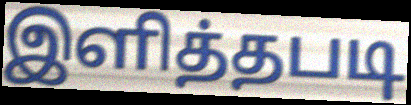
இளித்தபடி